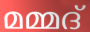
മമ്മദ്